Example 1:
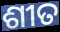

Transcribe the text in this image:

ଶୀତ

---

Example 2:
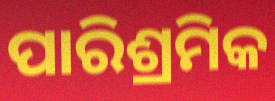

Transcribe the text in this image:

ପାରିଶ୍ରମିକ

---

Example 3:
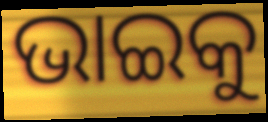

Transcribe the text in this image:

ଭାଇକୁ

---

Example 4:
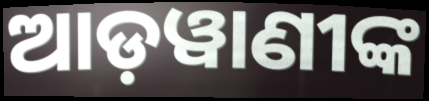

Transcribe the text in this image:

ଆଡ଼ୱାଣୀଙ୍କ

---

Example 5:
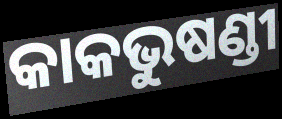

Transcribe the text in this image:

କାକଭୁଷଣ୍ଡୀ